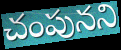
చంపునని